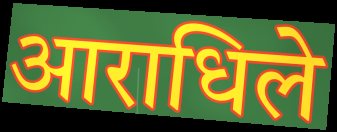
आराधिले